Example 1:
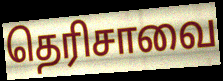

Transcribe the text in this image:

தெரிசாவை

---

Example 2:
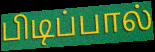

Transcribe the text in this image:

பிடிப்பால்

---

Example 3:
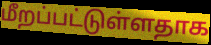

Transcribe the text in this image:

மீறப்பட்டுள்ளதாக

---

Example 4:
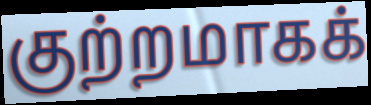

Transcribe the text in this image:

குற்றமாகக்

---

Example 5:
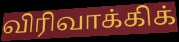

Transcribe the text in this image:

விரிவாக்கிக்